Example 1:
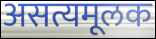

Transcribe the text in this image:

असत्यमूलक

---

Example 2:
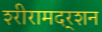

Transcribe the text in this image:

श्रीरामदर्शन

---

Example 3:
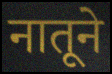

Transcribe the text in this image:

नातूने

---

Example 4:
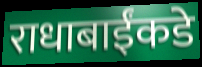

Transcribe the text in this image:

राधाबाईंकडे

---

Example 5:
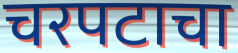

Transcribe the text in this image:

चरपटाचा